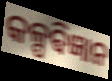
କଳ୍ପଵିଜ୍ଞାନ